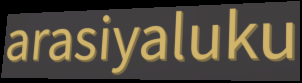
arasiyaluku